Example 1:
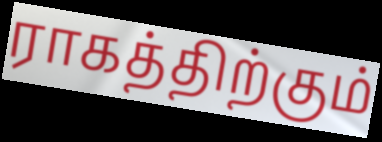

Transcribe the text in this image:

ராகத்திற்கும்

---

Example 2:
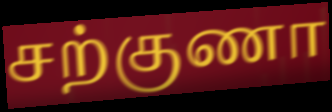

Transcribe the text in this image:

சற்குணா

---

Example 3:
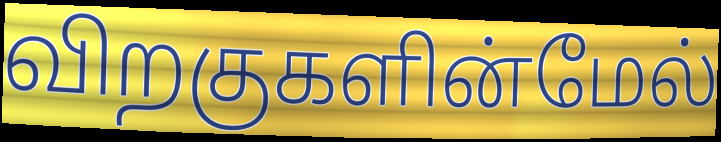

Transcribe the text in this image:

விறகுகளின்மேல்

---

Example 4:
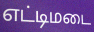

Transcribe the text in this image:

எட்டிமடை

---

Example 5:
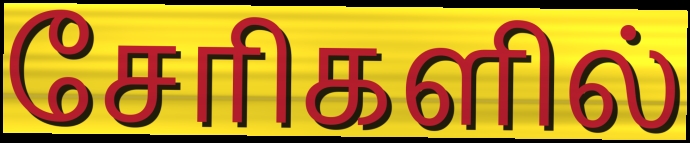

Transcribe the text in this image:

சேரிகளில்